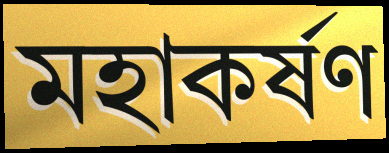
মহাকৰ্ষণ